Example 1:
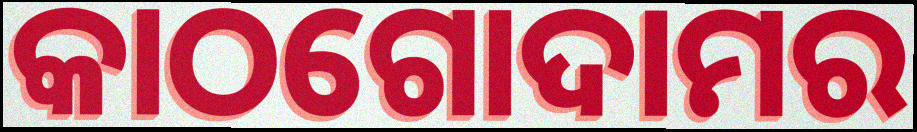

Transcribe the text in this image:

କାଠଗୋଦାମର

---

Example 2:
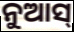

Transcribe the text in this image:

ନୁଆସ୍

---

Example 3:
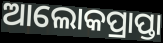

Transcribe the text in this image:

ଆଲୋକପ୍ରାପ୍ତା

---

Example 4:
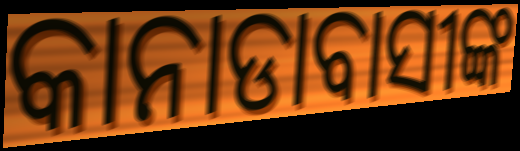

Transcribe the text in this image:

କାନାଡାବାସୀଙ୍କ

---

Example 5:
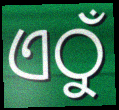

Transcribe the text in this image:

ଏଠୁଁ